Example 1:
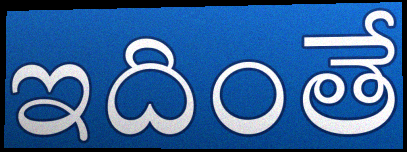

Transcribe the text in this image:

ఇదింతే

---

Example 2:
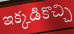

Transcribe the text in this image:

ఇక్కడికొచ్చి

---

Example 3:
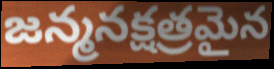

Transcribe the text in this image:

జన్మనక్షత్రమైన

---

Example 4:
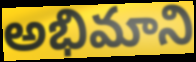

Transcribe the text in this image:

అభిమాని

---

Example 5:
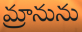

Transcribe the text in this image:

మ్రానును